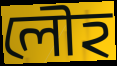
লৌহ